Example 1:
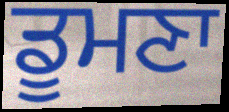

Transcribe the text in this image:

ਡੂਮਣਾ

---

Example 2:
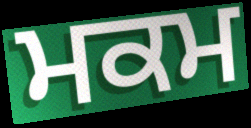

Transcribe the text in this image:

ਮਕਮ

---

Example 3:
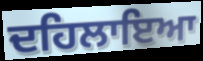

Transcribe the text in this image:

ਦਹਿਲਾਇਆ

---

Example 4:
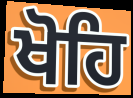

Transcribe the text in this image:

ਖੋਹਿ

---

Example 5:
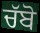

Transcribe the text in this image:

ਚੱਬੋ